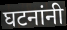
घटनांनी